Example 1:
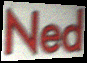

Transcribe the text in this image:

Ned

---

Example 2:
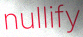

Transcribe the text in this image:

nullify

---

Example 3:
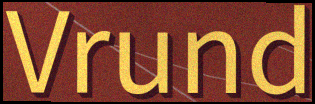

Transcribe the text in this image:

Vrund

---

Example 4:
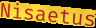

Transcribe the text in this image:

Nisaetus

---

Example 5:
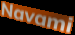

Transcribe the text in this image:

Navami